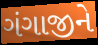
ગંગાજીને